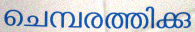
ചെമ്പരത്തിക്കു